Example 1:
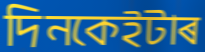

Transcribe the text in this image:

দিনকেইটাৰ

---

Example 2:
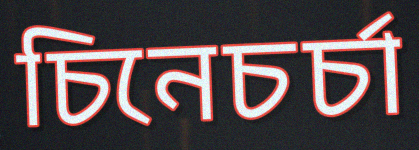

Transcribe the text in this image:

চিনেচৰ্চা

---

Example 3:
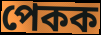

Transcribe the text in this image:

পেকক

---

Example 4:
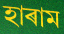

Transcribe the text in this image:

হাৰাম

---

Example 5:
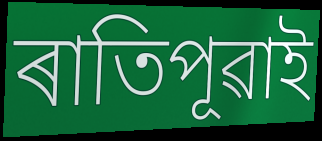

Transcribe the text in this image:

ৰাতিপূৱাই